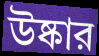
উষ্কার